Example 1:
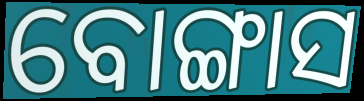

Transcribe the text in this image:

ବୋଙ୍ଗାସ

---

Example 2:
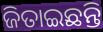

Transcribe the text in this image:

ଜିତାଇଛନ୍ତି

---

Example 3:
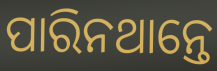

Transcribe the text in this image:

ପାରିନଥାନ୍ତେ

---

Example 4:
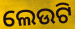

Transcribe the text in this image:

ଲେଉଟି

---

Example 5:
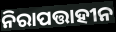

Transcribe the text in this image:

ନିରାପତ୍ତାହୀନ